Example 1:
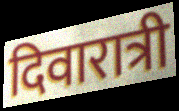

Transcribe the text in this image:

दिवारात्री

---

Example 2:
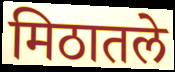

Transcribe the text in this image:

मिठातले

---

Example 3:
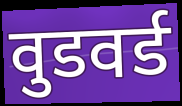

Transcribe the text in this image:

वुडवर्ड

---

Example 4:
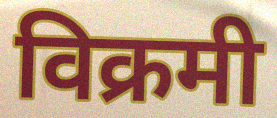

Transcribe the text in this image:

विक्रमी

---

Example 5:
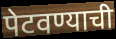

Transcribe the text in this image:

पेटवण्याची